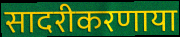
सादरीकरणाया